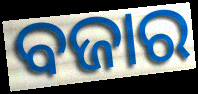
ବଜାର